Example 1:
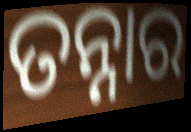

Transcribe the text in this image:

ତନ୍ନାର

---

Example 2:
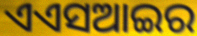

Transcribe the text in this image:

ଏଏସଆଇର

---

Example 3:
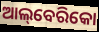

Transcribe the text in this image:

ଆଲ୍‌ବେରିକୋ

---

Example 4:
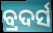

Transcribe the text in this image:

ବ୍ରଦର୍ସ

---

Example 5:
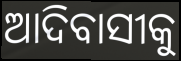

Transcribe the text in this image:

ଆଦିବାସୀକୁ